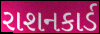
રાશનકાર્ડ